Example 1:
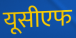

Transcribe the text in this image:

यूसीएफ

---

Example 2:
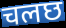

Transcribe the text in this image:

चलछ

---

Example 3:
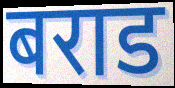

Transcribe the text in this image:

बराड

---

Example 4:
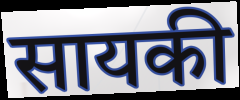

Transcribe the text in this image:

सायकी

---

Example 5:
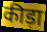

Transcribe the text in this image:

कीड़ा